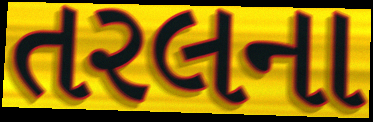
તરલના